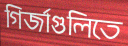
গির্জাগুলিতে